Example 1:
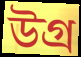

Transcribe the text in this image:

উগ্ৰ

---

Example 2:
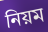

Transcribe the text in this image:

নিয়ম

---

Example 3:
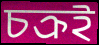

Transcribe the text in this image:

চক্ৰই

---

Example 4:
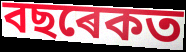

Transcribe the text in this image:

বছৰেকত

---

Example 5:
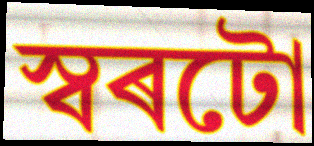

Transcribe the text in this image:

স্বৰটো